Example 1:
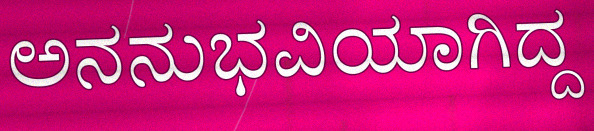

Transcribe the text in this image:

ಅನನುಭವಿಯಾಗಿದ್ದ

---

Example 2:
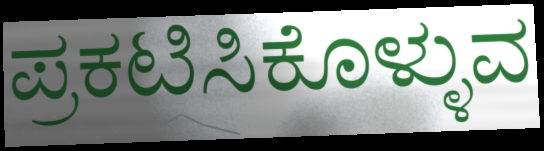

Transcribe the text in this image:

ಪ್ರಕಟಿಸಿಕೊಳ್ಳುವ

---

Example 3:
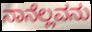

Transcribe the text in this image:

ನಾನೆಲ್ಲವನು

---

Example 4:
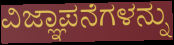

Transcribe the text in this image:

ವಿಜ್ಞಾಪನೆಗಳನ್ನು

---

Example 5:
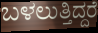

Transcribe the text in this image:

ಬಳಲುತ್ತಿದ್ದರೆ